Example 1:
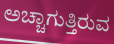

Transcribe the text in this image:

ಅಚ್ಚಾಗುತ್ತಿರುವ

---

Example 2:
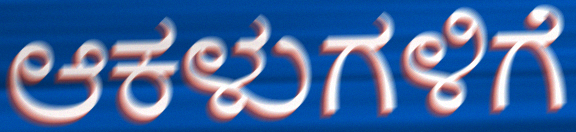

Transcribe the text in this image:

ಆಕಳುಗಳಿಗೆ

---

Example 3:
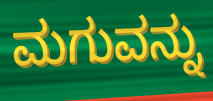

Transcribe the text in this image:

ಮಗುವನ್ನು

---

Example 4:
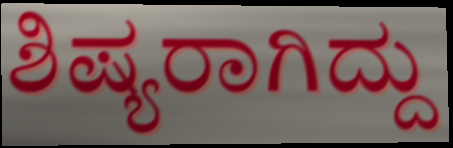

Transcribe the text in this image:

ಶಿಷ್ಯರಾಗಿದ್ದು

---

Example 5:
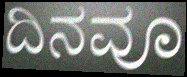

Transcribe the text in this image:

ದಿನವೂ